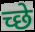
च्छे